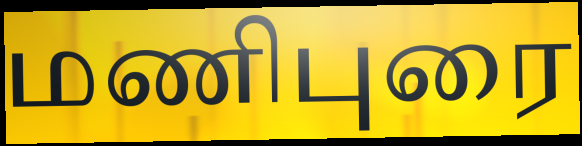
மணிபுரை